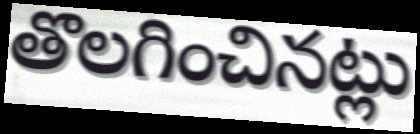
తొలగించినట్లు